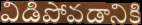
విడిపోవడానికి